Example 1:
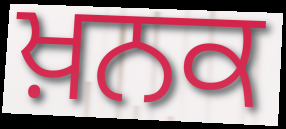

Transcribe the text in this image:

ਖ਼ਨਕ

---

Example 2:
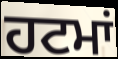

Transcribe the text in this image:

ਹਟਮਾਂ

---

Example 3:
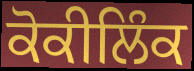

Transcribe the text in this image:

ਕੋਕੀਲਿੰਕ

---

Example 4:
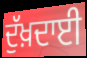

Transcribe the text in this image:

ਦੁੱਖ਼ਦਾਈ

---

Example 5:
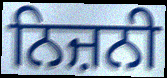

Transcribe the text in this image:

ਨਿਜ਼ਨੀ